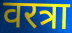
वरत्रा